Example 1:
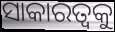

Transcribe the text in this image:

ସାକାରତ୍ଵକୁ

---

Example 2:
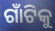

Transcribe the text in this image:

ଗାଁଟିକୁ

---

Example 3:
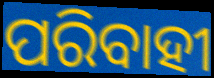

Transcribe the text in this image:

ପରିବାହୀ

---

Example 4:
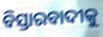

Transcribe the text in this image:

ବିସ୍ତାରବାଦୀକୁ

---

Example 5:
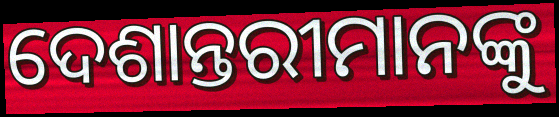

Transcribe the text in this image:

ଦେଶାନ୍ତରୀମାନଙ୍କୁ